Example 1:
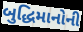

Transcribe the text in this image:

બુદ્ધિમાનોની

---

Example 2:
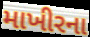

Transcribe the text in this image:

માખીરના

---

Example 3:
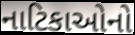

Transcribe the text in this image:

નાટિકાઓનો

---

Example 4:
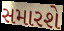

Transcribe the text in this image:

સમારશે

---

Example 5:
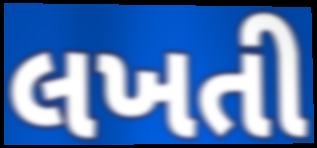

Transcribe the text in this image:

લખતી